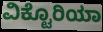
ವಿಕ್ಟೊರಿಯಾ